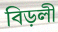
বিড়লী